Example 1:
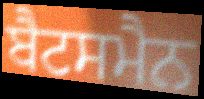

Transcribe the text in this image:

ਬੈਟਸਮੈਨ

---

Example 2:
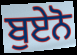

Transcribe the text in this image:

ਬੁਏਨੋ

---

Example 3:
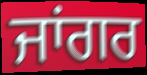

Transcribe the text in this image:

ਜਾਂਗਰ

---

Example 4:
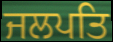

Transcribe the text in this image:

ਜਲਪਤਿ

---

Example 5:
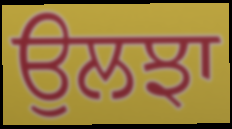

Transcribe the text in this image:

ਉਲਝਾ